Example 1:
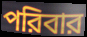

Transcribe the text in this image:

পরিবার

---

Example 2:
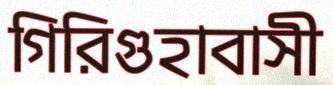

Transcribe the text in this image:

গিরিগুহাবাসী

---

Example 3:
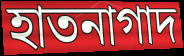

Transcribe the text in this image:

হাতনাগাদ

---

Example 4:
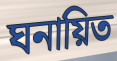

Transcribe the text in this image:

ঘনায়িত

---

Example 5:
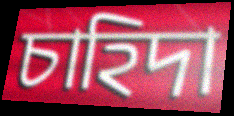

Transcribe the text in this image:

চাহিদা